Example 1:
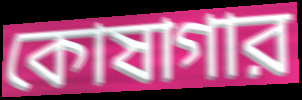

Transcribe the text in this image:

কোষাগার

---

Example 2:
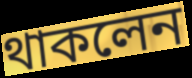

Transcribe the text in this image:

থাকলেন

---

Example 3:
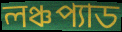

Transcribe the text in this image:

লঞ্চপ্যাড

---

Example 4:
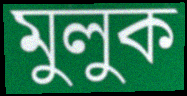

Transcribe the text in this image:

মুলুক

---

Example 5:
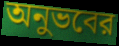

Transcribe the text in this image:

অনুভবের